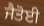
ਜੈਤੋਈ